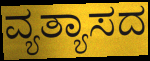
ವ್ಯತ್ಯಾಸದ